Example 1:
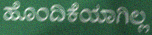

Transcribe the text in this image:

ಹೊಂದಿಕೆಯಾಗಿಲ್ಲ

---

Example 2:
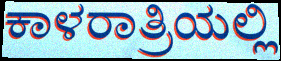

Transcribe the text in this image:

ಕಾಳರಾತ್ರಿಯಲ್ಲಿ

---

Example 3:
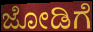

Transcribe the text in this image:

ಜೋಡಿಗೆ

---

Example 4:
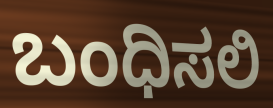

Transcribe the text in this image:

ಬಂಧಿಸಲಿ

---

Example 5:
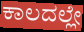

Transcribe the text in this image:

ಕಾಲದಲ್ಲೇ